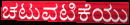
ಚಟುವಟಿಕೆಯು